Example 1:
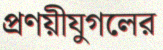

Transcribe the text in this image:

প্রণয়ীযুগলের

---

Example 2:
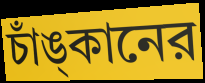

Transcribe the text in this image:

চাঁঙ্‌কানের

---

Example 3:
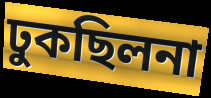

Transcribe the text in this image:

ঢুকছিলনা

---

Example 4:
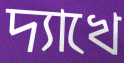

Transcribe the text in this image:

দ্যাখে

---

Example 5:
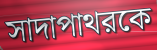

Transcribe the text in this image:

সাদাপাথরকে